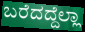
ಬರೆದದ್ದೆಲ್ಲಾ